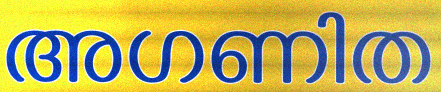
അഗണിത